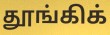
தூங்கிக்